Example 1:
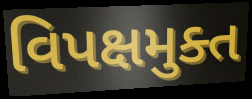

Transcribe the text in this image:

વિપક્ષમુક્ત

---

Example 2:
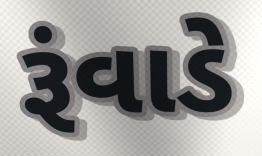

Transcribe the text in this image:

રૂંવાડે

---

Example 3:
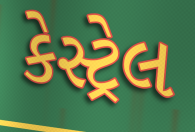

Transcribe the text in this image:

કેસ્ટ્રેલ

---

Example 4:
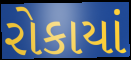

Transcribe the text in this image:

રોકાયાં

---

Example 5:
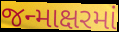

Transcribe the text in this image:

જન્માક્ષરમાં